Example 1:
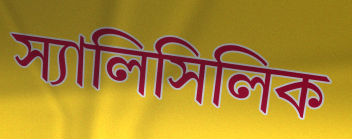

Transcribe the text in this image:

স্যালিসিলিক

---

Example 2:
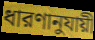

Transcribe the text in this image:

ধারণানুযায়ী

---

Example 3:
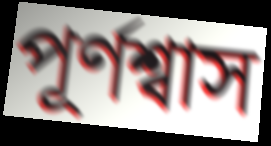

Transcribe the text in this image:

পূর্ণশ্বাস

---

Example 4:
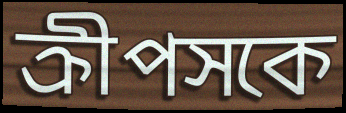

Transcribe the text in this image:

ক্রীপসকে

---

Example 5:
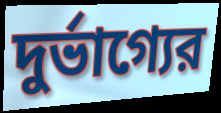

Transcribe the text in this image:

দুর্ভাগ্যের